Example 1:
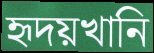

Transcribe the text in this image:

হৃদয়খানি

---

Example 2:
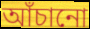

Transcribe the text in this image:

আঁচানো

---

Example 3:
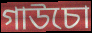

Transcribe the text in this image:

গাউচো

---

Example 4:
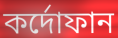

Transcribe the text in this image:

কর্দোফান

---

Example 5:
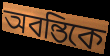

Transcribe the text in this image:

অবন্তিকে